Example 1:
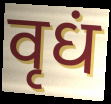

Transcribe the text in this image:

वृधं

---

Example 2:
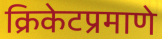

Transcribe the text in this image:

क्रिकेटप्रमाणे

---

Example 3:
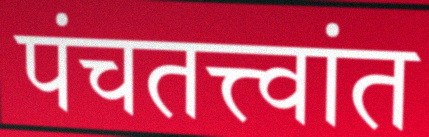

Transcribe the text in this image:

पंचतत्त्वांत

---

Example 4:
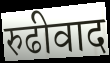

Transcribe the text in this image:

रुढीवाद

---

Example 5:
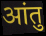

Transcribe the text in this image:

आंतु